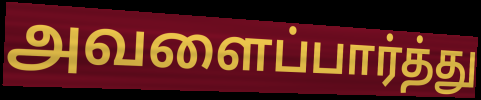
அவளைப்பார்த்து